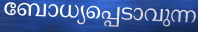
ബോധ്യപ്പെടാവുന്ന